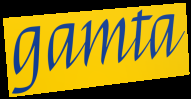
gamta